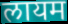
लायम